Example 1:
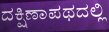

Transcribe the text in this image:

ದಕ್ಷಿಣಾಪಥದಲ್ಲಿ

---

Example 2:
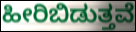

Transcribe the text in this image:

ಹೀರಿಬಿಡುತ್ತವೆ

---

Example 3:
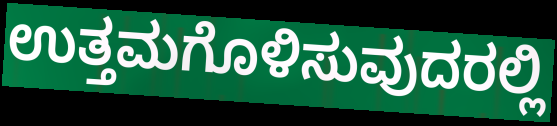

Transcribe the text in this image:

ಉತ್ತಮಗೊಳಿಸುವುದರಲ್ಲಿ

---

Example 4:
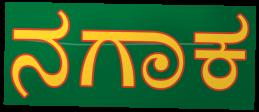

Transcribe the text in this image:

ನಗಾಕ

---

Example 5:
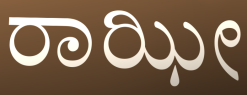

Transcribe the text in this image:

ರಾಝೀ